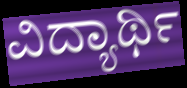
ವಿದ್ಯಾರ್ಥಿ